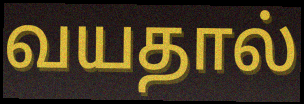
வயதால்